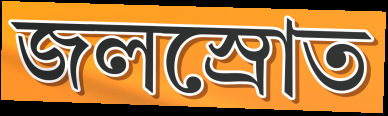
জলস্রোত